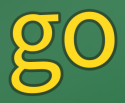
go